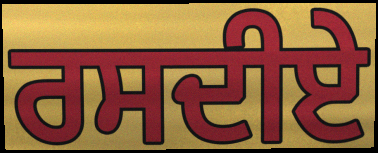
ਰਸਦੀਏ